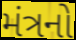
મંત્રનો